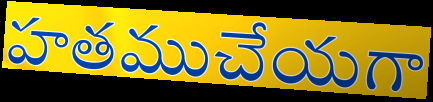
హతముచేయగా